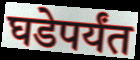
घडेपर्यंत